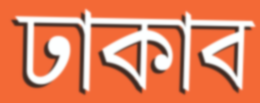
ঢাকাব